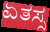
ಏತಸ್ಸ